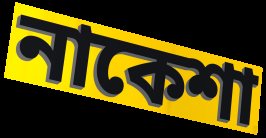
নাকেশা